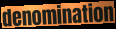
denomination